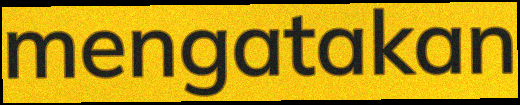
mengatakan